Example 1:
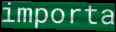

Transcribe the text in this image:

importa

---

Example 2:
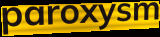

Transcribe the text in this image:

paroxysm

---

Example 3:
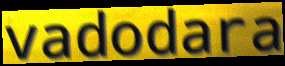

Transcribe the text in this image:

vadodara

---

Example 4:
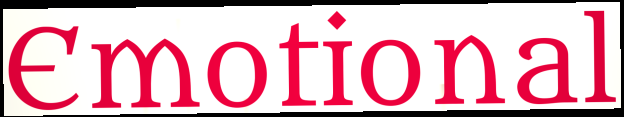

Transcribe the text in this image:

Emotional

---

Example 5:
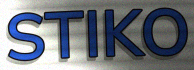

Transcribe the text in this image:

STIKO